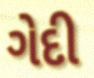
ગેદી